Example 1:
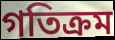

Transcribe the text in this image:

গতিক্রম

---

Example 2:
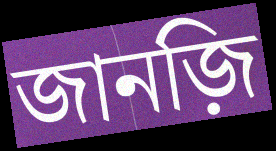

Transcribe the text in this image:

জানজ়ি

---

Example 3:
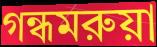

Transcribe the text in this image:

গন্ধমরুয়া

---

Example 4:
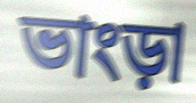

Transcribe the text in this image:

ভাংড়া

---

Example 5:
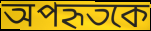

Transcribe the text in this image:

অপহৃতকে